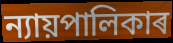
ন্যায়পালিকাৰ